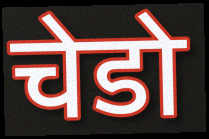
चेडो